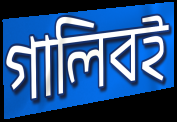
গালিবই